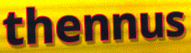
thennus